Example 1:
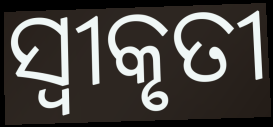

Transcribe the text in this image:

ସ୍ୱୀକୃତୀ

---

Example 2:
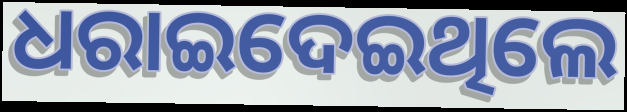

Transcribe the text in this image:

ଧରାଇଦେଇଥିଲେ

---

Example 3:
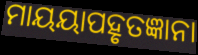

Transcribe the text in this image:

ମାୟୟାପହୃତଜ୍ଞାନା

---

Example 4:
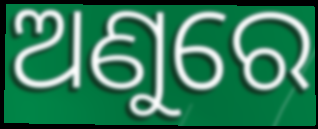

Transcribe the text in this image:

ଅଣୁରେ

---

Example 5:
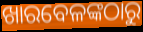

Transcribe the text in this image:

ଖାରବେଳଙ୍କଠାରୁ